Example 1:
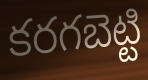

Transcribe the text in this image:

కరగబెట్టి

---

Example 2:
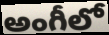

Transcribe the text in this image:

అంగీలో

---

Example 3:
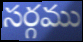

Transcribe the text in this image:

సర్గము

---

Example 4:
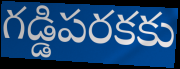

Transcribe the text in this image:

గడ్డిపరకకు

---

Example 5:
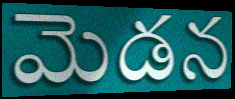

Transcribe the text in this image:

మెడన